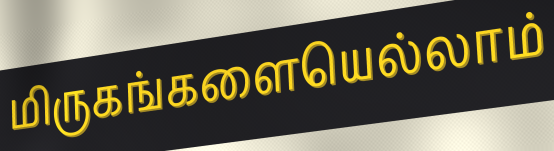
மிருகங்களையெல்லாம்